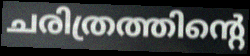
ചരിത്രത്തിന്റെ